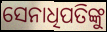
ସେନାଧିପତିଙ୍କୁ